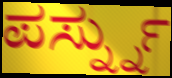
ಪರ್ಸ್ನ್ನು